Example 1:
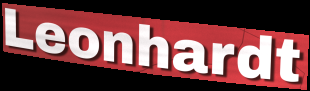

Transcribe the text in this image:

Leonhardt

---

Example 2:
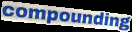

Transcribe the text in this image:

compounding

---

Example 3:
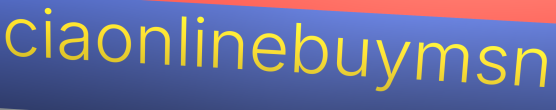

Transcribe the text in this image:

ciaonlinebuymsn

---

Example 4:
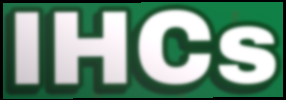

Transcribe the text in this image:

IHCs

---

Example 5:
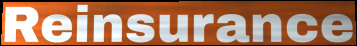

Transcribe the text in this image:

Reinsurance